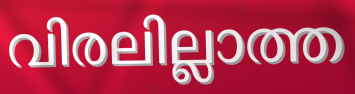
വിരലില്ലാത്ത